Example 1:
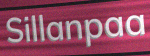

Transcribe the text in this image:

Sillanpaa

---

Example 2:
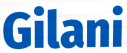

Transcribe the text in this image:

Gilani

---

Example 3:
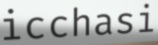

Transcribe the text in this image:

icchasi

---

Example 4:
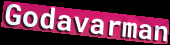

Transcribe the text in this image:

Godavarman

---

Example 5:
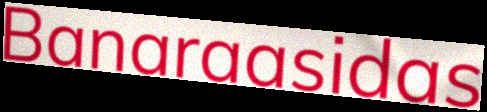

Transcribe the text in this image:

Banaraasidas